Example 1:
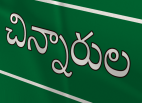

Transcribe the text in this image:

చిన్నారుల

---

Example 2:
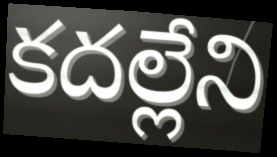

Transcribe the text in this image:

కదల్లేని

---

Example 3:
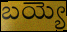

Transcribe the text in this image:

బయ్యె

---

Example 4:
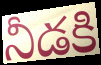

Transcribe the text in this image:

నీడకి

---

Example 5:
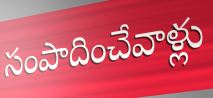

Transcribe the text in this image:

సంపాదించేవాళ్లు